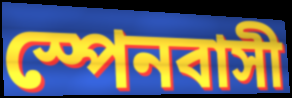
স্পেনবাসী